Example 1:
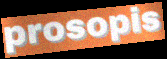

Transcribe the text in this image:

prosopis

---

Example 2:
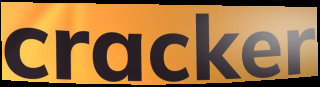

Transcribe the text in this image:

cracker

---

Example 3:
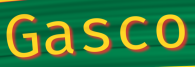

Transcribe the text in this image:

Gasco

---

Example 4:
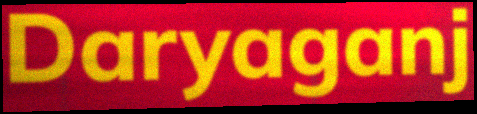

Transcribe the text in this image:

Daryaganj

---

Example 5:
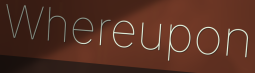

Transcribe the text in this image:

Whereupon